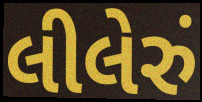
લીલેરું